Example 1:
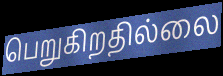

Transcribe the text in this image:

பெறுகிறதில்லை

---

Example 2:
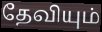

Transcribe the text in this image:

தேவியும்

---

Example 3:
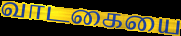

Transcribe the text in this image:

வாடகையை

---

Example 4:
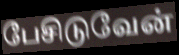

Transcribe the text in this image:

பேசிடுவேன்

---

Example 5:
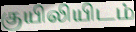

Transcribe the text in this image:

குயிலியிடம்